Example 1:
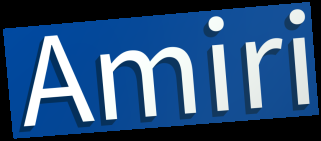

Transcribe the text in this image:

Amiri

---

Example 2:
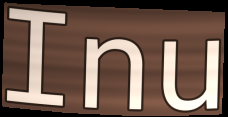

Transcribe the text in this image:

Inu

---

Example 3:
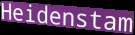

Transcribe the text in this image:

Heidenstam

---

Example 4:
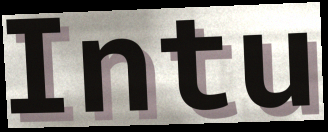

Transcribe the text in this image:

Intu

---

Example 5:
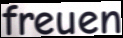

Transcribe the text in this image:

freuen